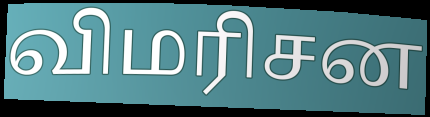
விமரிசன